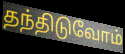
தந்திடுவோம்